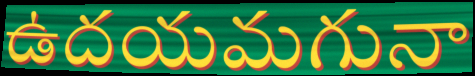
ఉదయమగునా